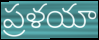
ప్రళయా